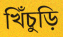
খিঁচুড়ি